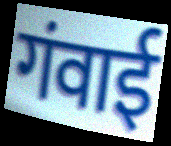
गंवाई